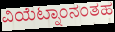
ವಿಯೆಟ್ನಾಂನಂತಹ